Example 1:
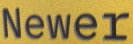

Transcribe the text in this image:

Newer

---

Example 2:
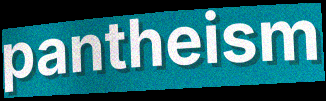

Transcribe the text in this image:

pantheism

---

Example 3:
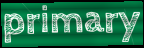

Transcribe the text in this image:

primary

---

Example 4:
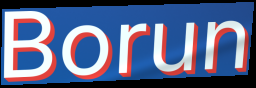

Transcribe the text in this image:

Borun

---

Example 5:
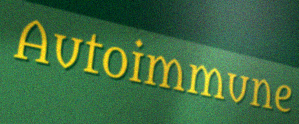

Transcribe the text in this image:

Autoimmune